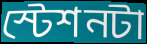
স্টেশনটা